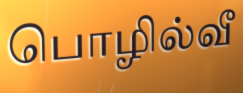
பொழில்வீ